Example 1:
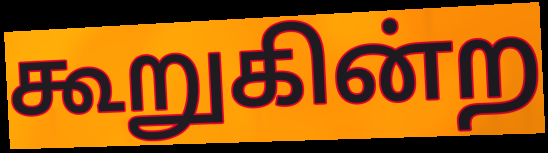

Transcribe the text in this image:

கூறுகின்ற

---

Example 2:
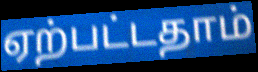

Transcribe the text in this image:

ஏற்பட்டதாம்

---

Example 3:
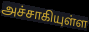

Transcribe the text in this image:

அச்சாகியுள்ள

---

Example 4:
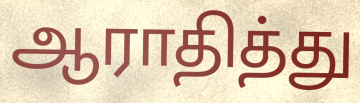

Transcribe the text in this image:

ஆராதித்து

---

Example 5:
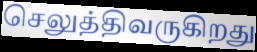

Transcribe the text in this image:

செலுத்திவருகிறது